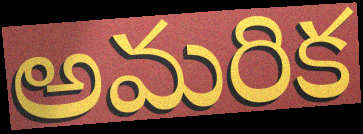
అమరిక